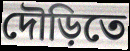
দৌড়িতে